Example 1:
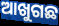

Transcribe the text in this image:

ଆଖୁଗଛ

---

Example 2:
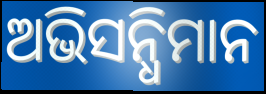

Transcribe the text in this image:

ଅଭିସନ୍ଧିମାନ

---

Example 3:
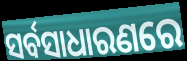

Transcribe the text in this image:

ସର୍ବସାଧାରଣରେ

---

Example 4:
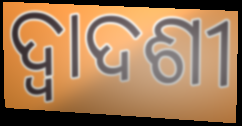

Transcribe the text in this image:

ଦ୍ବାଦଶୀ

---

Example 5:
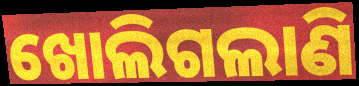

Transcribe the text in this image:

ଖୋଲିଗଲାଣି